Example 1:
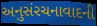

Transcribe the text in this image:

અનુસંરચનાવાદની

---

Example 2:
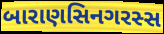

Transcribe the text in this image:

બારાણસિનગરસ્સ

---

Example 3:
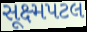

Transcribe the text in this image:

સૂક્ષ્મપટલ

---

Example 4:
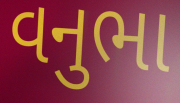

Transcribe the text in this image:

વનુભા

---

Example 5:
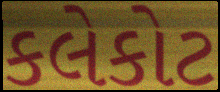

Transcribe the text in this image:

કલેકોટ